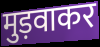
मुड़वाकर